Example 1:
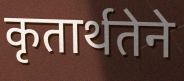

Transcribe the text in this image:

कृतार्थतेने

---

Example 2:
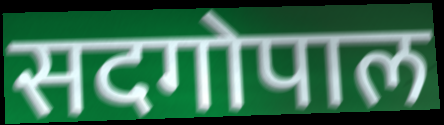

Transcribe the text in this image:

सदगोपाल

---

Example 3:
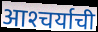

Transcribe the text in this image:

आश्चर्याची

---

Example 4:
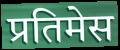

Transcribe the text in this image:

प्रतिमेस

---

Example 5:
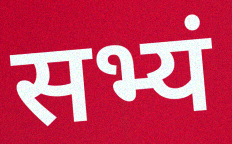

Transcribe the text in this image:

सभ्यं